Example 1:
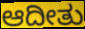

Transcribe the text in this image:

ಆದೀತು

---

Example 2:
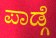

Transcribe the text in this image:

ಪಾಡ್ಗೆ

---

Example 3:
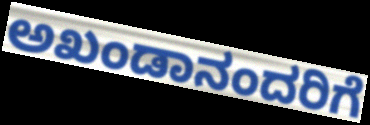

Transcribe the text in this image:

ಅಖಂಡಾನಂದರಿಗೆ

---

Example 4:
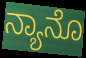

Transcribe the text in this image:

ನ್ಯಾನೊ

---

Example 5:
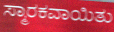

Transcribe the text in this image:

ಸ್ಮಾರಕವಾಯಿತು